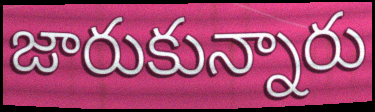
జారుకున్నారు